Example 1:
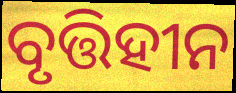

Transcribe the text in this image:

ବୃତ୍ତିହୀନ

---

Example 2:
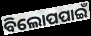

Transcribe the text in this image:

ବିଲୋପପାଇଁ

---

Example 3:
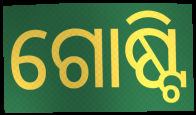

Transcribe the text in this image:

ଗୋଷ୍ଟି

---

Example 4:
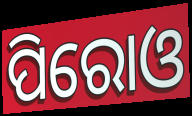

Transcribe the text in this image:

ପିରୋଓ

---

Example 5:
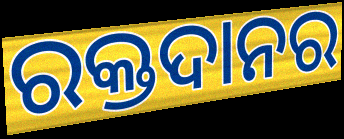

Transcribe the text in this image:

ରକ୍ତଦାନର